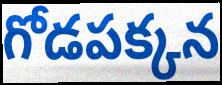
గోడపక్కన